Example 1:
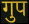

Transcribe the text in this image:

गुप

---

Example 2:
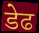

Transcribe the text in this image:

डेढ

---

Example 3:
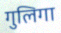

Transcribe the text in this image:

गुलिगा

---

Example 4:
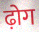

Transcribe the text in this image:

ढ़ोग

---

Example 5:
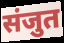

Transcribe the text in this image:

संजुत